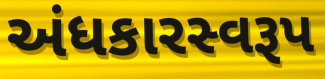
અંધકારસ્વરૂપ